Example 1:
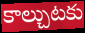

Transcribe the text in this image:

కాల్చుటకు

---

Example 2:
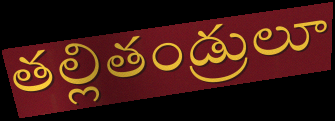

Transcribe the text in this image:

తల్లితండ్రులూ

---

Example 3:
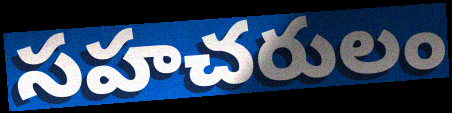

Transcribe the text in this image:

సహచరులం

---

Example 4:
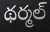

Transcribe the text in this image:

థర్మల్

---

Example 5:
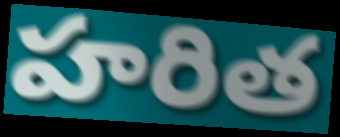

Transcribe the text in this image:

హరిత